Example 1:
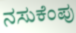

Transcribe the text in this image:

ನಸುಕೆಂಪು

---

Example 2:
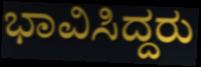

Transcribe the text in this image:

ಭಾವಿಸಿದ್ದರು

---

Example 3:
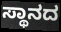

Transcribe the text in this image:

ಸ್ಥಾನದ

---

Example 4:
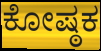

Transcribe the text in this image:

ಕೋಷ್ಠಕ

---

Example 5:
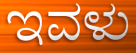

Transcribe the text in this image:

ಇವಳು